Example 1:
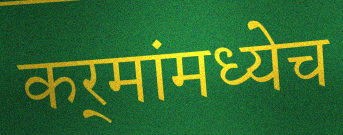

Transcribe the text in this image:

कर्मांमध्येच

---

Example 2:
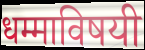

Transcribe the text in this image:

धम्माविषयी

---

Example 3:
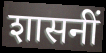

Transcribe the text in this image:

शासनीं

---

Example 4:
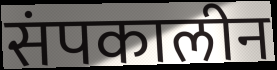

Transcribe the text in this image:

संपकालीन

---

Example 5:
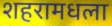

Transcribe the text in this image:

शहरामधला